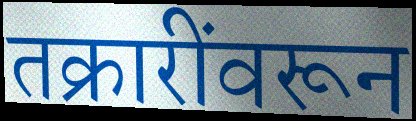
तक्रारींवरून